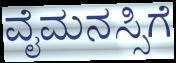
ವೈಮನಸ್ಸಿಗೆ